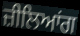
ਜ਼ੀਲਿਆਂਗ